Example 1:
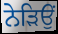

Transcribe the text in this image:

ਨੇੜਿਉਂ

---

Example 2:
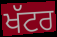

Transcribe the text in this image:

ਖੱਟਰ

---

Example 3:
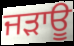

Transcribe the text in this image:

ਜੜਾਊ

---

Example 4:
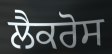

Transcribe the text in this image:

ਲੈਕਰੋਸ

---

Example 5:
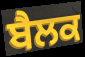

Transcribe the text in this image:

ਬੈਲਕ